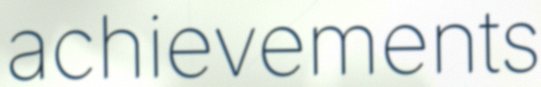
achievements